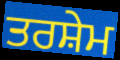
ਤਰਸ਼ੇਮ